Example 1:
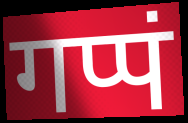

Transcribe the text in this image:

गप्पं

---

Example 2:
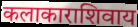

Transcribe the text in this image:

कलाकाराशिवाय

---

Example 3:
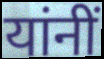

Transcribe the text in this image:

यांनीं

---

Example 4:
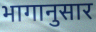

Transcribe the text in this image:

भागानुसार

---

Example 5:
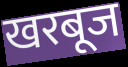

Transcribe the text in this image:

खरबूज